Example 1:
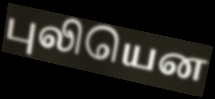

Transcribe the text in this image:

புலியென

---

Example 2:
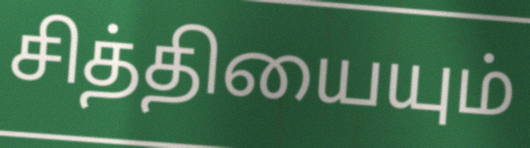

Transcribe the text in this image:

சித்தியையும்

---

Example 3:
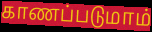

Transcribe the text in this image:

காணப்படுமாம்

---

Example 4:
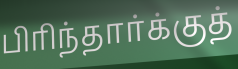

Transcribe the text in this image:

பிரிந்தார்க்குத்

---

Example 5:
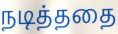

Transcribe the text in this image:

நடித்ததை